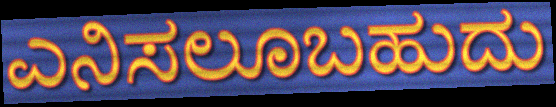
ಎನಿಸಲೂಬಹುದು